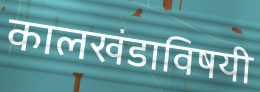
कालखंडाविषयी